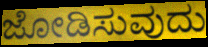
ಜೋಡಿಸುವುದು